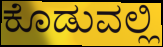
ಕೊಡುವಲ್ಲಿ